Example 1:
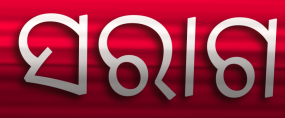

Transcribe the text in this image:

ସରାଗ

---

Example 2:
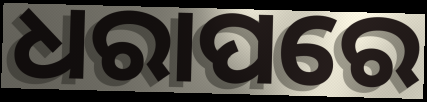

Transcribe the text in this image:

ଧରାପରେ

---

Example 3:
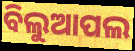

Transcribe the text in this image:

ବିଲୁଆପଲ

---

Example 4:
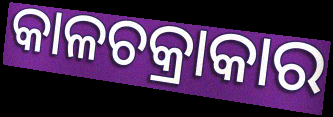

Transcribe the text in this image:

କାଳଚକ୍ରାକାର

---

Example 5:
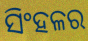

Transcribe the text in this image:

ସିଂହଳର